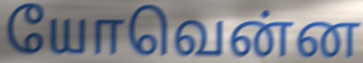
யோவென்ன